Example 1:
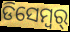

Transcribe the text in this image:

ଡିସେମ୍ବର୍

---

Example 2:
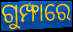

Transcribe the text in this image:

ଗୁମ୍ଫାରେ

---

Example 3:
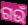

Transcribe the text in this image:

ଗଉଁ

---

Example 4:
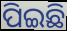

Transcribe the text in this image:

ପିଇଛି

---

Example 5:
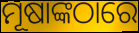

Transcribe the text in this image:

ମୂଷାଙ୍କଠାରେ